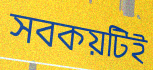
সবকয়টিই